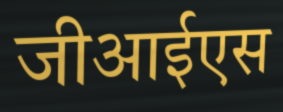
जीआईएस